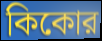
কিকোর